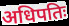
अधिपतिः